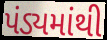
પંડ્યમાંથી